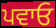
ਪਵਾਓ